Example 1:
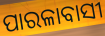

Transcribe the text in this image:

ପାରଳାବାସୀ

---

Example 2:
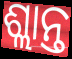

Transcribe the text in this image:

ଶ୍ଲାନ୍ତ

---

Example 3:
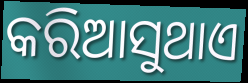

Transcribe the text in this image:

କରିଆସୁଥାଏ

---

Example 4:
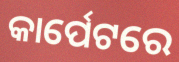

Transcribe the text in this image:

କାର୍ପେଟରେ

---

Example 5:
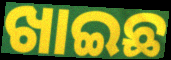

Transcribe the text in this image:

ଖାଇଛ